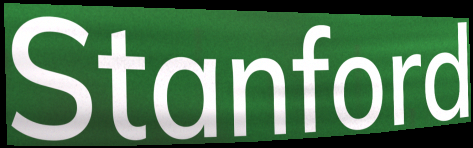
Stanford